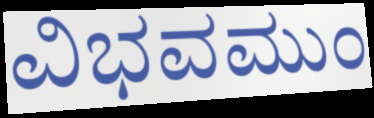
ವಿಭವಮುಂ